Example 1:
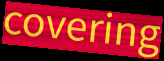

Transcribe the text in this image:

covering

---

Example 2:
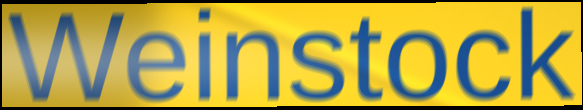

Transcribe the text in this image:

Weinstock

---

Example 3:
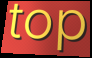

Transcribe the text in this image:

top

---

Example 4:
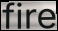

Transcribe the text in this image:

fire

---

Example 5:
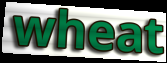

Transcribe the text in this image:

wheat